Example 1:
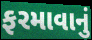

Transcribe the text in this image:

ફરમાવાનું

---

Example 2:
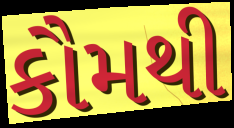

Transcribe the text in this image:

કૌમથી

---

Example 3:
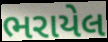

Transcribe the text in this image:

ભરાયેલ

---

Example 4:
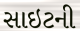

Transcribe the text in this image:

સાઇટની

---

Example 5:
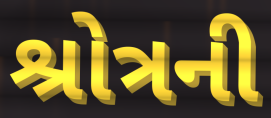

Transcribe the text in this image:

શ્રોત્રની